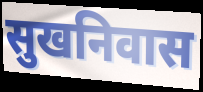
सुखनिवास